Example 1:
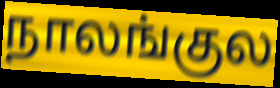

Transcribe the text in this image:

நாலங்குல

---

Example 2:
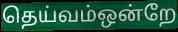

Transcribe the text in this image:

தெய்வம்ஒன்றே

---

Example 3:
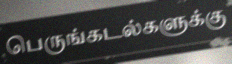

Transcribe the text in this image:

பெருங்கடல்களுக்கு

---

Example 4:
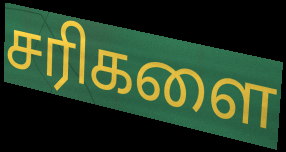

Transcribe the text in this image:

சரிகளை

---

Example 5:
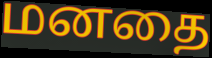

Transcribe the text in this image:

மனதை